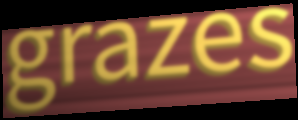
grazes